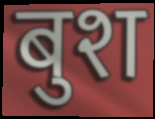
बुश